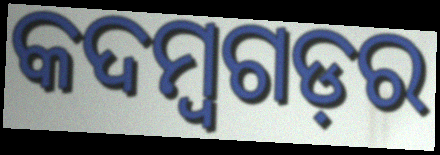
କଦମ୍ବଗଡ଼ର